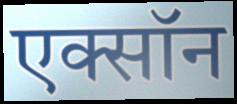
एक्सॉन